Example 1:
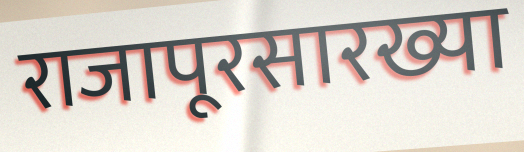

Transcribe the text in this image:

राजापूरसारख्या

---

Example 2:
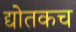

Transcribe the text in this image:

द्योतकच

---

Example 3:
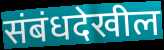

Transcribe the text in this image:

संबंधदेखील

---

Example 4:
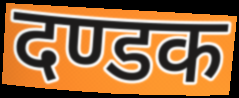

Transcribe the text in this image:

दण्डक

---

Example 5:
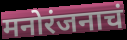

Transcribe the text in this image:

मनोरंजनाचं